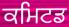
ਕਮਿਟਡ